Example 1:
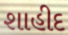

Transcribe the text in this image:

શાહીદ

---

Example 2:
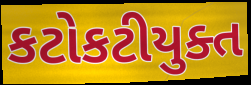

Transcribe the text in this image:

કટોકટીયુક્ત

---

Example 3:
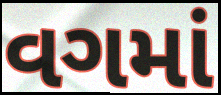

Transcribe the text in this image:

વગમાં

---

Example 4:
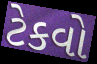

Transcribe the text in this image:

ટેકવો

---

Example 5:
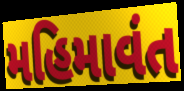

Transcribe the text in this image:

મહિમાવંત